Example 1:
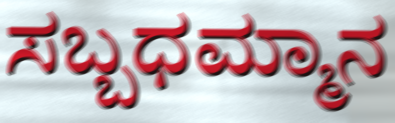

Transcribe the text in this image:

ಸಬ್ಬಧಮ್ಮಾನ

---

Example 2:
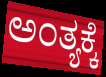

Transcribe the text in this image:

ಅಂತ್ಯಕ್ಕೆ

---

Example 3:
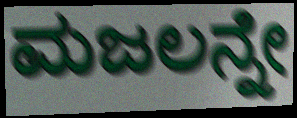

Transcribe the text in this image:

ಮಜಲನ್ನೇ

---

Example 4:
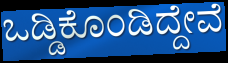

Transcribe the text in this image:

ಒಡ್ಡಿಕೊಂಡಿದ್ದೇವೆ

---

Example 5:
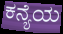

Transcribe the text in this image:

ಕನ್ಯೆಯ